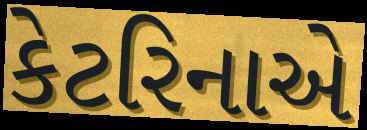
કેટરિનાએ